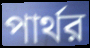
পার্থর